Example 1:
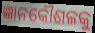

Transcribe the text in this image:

ଜ୍ଞାନକୌଶଳକୁ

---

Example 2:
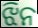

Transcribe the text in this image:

ଝିନ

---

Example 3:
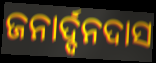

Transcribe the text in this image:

ଜନାର୍ଦ୍ଦନଦାସ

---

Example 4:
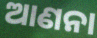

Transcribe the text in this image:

ଆଣନା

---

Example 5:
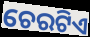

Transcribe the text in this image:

ଚେରଟିଏ